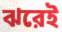
ঝরেই